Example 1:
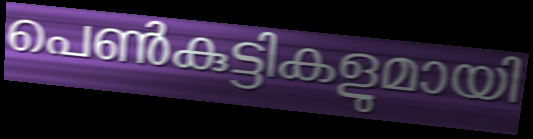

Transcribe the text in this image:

പെൺകുട്ടികളുമായി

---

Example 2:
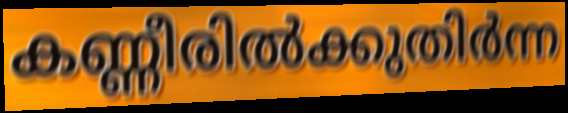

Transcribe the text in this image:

കണ്ണീരിൽക്കുതിർന്ന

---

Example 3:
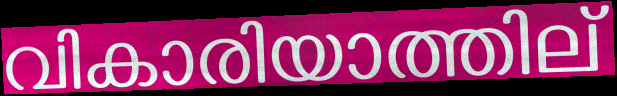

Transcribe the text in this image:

വികാരിയാത്തില്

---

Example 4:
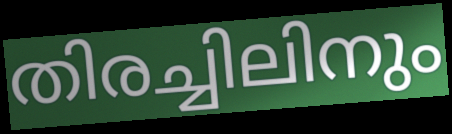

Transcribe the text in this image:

തിരച്ചിലിനും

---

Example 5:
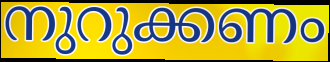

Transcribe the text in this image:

നുറുക്കണം